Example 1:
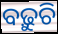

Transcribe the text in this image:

ବଢ଼ୁଚି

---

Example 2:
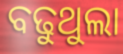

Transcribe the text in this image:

ବଢୁଥୁଲା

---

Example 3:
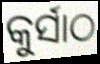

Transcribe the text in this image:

କୁର୍ସାଠ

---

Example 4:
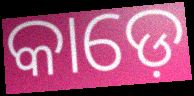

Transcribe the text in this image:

କାଡ଼େ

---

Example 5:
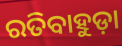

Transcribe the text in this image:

ରତିବାହୁଡ଼ା